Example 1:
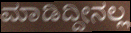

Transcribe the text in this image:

ಮಾಡಿದ್ದೀನಲ್ಲ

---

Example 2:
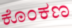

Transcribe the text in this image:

ಕೊಂಕಣ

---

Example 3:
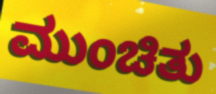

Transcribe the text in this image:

ಮುಂಚಿತು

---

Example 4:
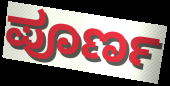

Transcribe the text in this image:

ಪೂರ್ಣ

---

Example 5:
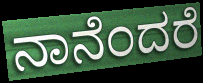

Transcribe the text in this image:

ನಾನೆಂದರೆ